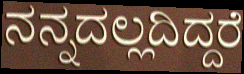
ನನ್ನದಲ್ಲದಿದ್ದರೆ